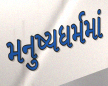
મનુષ્યધર્મમાં